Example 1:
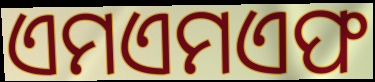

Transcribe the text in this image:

ଏମଏମଏଫ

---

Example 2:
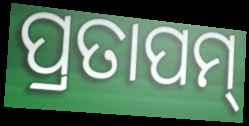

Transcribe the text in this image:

ପ୍ରତାପମ୍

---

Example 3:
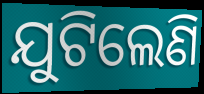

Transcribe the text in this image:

ଯୁଟିଲେଣି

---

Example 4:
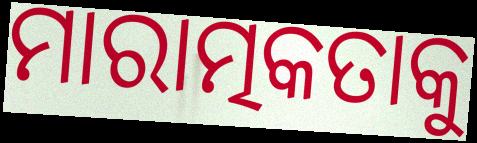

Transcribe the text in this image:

ମାରାତ୍ମକତାକୁ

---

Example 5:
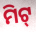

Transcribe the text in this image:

ମିଟ୍